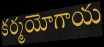
కర్మయోగాయ